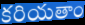
కరియతాం